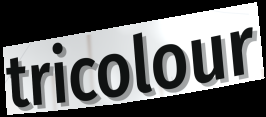
tricolour